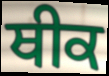
ਥੀਕ